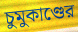
চুমুকাণ্ডের